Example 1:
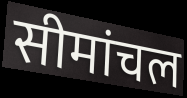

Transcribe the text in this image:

सीमांचल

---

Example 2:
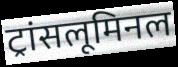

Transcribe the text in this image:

ट्रांसलूमिनल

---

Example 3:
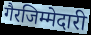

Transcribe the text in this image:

गैरजिम्मेदारी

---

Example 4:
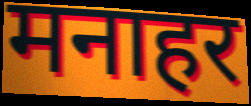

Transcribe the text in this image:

मनाहर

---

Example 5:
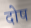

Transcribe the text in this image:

दोष